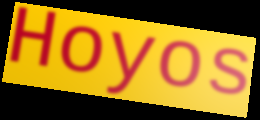
Hoyos